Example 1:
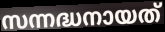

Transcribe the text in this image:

സന്നദ്ധനായത്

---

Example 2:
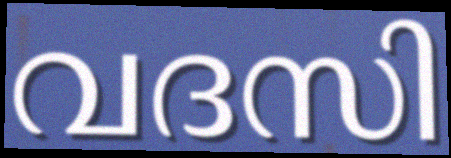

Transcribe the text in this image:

വദസി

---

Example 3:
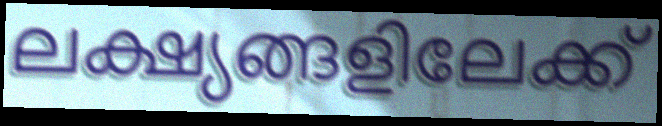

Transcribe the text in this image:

ലക്ഷ്യങ്ങളിലേക്ക്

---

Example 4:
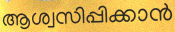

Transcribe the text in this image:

ആശ്വസിപ്പിക്കാൻ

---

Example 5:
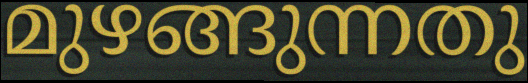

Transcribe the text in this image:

മുഴങ്ങുന്നതു